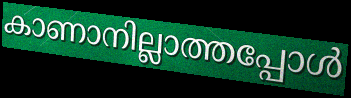
കാണാനില്ലാത്തപ്പോൾ